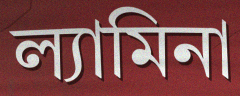
ল্যামিনা